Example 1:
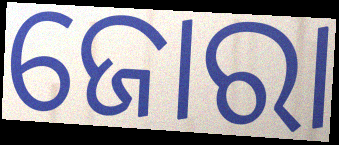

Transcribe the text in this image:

ଜୋରା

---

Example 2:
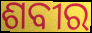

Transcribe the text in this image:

ଶବୀର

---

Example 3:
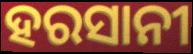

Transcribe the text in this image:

ହରସାନୀ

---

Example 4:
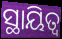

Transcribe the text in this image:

ସ୍ଥାୟିତ୍ୱ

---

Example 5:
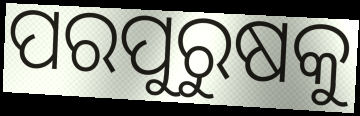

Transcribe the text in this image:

ପରପୁରୁଷକୁ